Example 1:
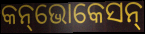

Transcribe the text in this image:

କନ୍‌ଭୋକେସନ୍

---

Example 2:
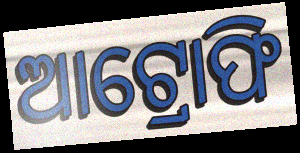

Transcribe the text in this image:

ଆଟ୍ରୋଫି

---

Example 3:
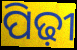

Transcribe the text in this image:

ପିଢ଼ୀ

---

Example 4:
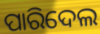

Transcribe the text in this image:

ପାରିଦେଲ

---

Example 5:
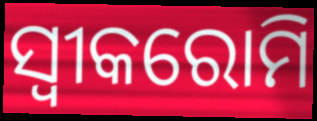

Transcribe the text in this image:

ସ୍ଵୀକରୋମି